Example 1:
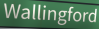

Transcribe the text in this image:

Wallingford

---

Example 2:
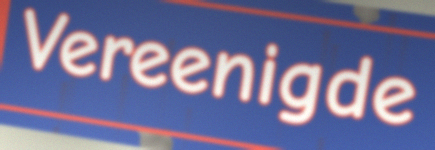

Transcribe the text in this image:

Vereenigde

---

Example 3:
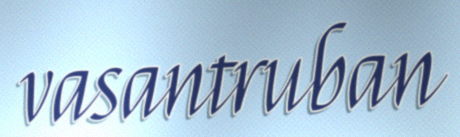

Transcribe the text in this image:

vasantruban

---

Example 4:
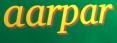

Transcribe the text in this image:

aarpar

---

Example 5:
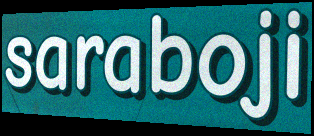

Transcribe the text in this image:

saraboji